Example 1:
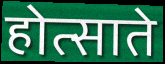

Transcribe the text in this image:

होत्साते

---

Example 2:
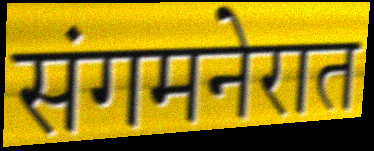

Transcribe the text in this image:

संगमनेरात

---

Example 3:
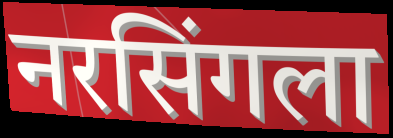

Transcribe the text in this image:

नरसिंगला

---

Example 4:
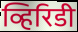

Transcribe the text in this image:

व्हिरिडी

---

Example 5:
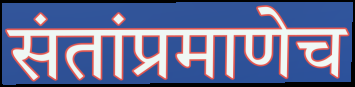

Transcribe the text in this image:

संतांप्रमाणेच